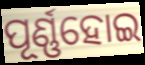
ପୂର୍ଣ୍ଣହୋଇ